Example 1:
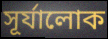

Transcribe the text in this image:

সূর্যালোক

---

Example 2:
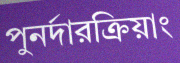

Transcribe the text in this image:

পুনর্দারক্রিয়াং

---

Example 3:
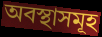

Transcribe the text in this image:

অবস্থাসমূহ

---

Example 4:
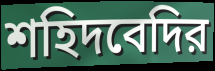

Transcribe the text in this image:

শহিদবেদির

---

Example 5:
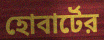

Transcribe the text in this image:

হোবার্টের